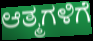
ಆತ್ಮಗಳಿಗೆ